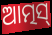
ଆତ୍ମସ୍